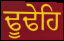
ਢੂਢੇਹਿ